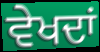
ਵੇਖਦਾਂ